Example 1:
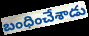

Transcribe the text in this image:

బంధించేశాడు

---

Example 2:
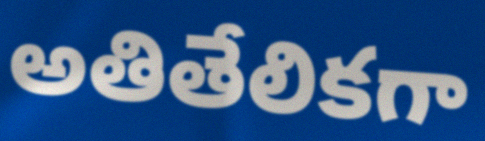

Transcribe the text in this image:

అతితేలికగా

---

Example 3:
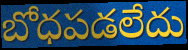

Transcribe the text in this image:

బోధపడలేదు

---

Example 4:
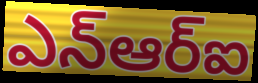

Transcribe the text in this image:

ఎన్ఆర్ఐ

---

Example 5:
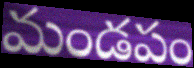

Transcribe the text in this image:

మండపం